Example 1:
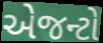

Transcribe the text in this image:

એજન્ટો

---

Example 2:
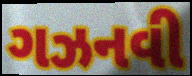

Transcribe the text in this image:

ગઝનવી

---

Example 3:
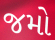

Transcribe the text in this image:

જમો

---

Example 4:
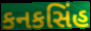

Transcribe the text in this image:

કનકસિંહ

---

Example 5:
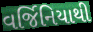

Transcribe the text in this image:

વર્જિનિયાથી